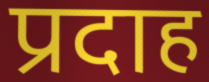
प्रदाह